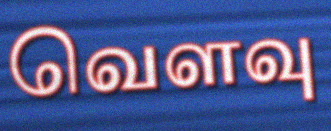
வெளவு